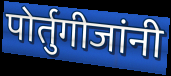
पोर्तुगीजांनी